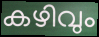
കഴിവും